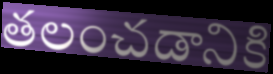
తలంచడానికి